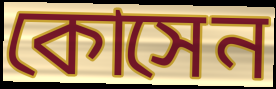
কোসেন